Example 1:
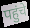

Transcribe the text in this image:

पहुंचे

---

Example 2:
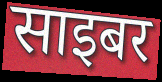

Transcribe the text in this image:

साइबर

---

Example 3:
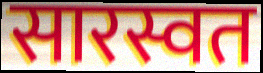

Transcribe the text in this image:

सारस्वत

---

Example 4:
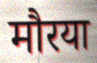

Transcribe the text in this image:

मौरया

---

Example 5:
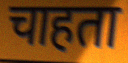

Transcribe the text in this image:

चाहता